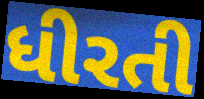
ધીરતી